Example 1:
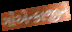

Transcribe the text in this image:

ગોએન્કાજીને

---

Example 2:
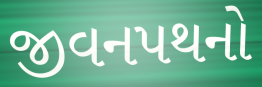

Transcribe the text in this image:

જીવનપથનો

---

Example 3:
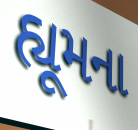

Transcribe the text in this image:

હ્યૂમના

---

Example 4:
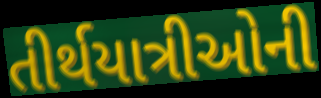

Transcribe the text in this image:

તીર્થયાત્રીઓની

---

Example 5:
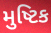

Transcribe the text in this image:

મુષ્ટિક